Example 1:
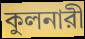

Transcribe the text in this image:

কুলনারী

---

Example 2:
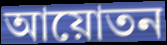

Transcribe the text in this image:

আয়োতন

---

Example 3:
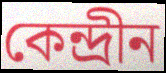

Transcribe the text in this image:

কেন্দ্রীন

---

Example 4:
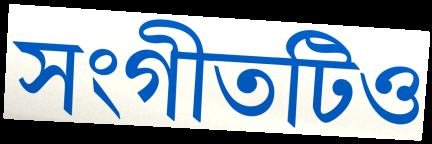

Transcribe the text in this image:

সংগীতটিও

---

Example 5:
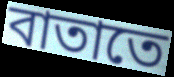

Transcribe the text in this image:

বাতাতে